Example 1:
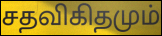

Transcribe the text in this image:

சதவிகிதமும்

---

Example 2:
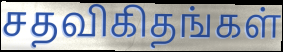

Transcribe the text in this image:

சதவிகிதங்கள்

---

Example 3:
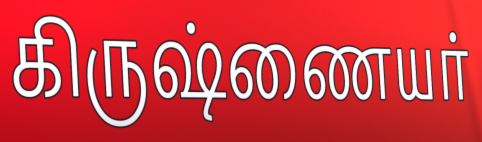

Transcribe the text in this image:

கிருஷ்ணையர்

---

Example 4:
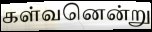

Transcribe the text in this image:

கள்வனென்று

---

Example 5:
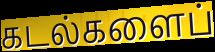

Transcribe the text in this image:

கடல்களைப்